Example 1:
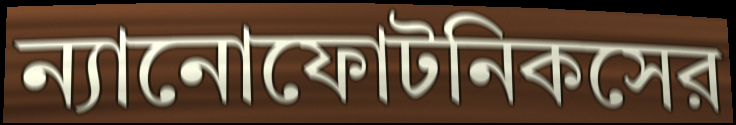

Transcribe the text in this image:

ন্যানোফোটনিকসের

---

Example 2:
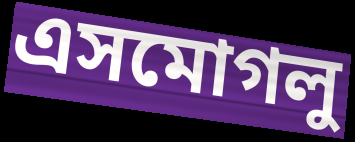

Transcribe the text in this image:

এসমোগলু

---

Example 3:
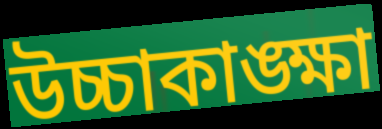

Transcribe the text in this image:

উচ্চাকাঙ্ক্ষা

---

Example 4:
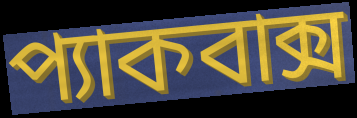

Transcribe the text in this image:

প্যাকবাক্স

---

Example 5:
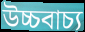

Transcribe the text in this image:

উচ্চবাচ্য